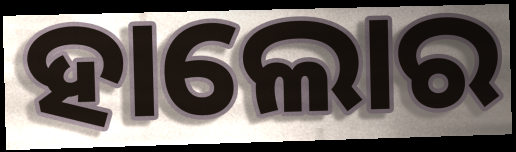
ହାଲୋର